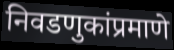
निवडणुकांप्रमाणे